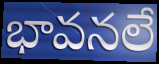
భావనలే